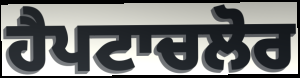
ਹੈਪਟਾਚਲੋਰ